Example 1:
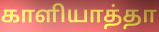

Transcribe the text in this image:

காளியாத்தா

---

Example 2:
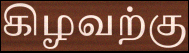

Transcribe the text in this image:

கிழவற்கு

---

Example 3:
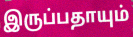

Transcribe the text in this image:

இருப்பதாயும்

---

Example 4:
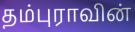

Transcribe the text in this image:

தம்புராவின்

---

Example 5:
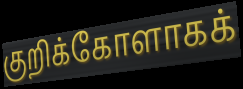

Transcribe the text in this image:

குறிக்கோளாகக்